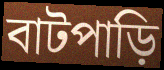
বাটপাড়ি